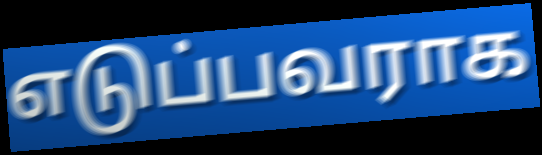
எடுப்பவராக